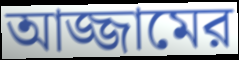
আজ্জামের